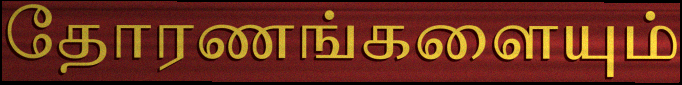
தோரணங்களையும்